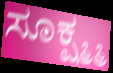
ಸೂಕ್ಷ್ಮ್ಮ